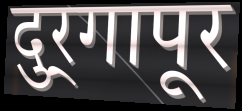
दुर्गापूर